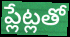
ప్లేట్లతో